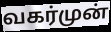
வகர்முன்